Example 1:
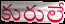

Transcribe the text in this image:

కురులే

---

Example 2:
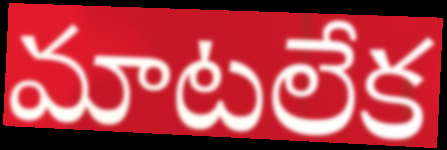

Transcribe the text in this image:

మాటలేక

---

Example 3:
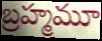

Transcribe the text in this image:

బ్రహ్మమూ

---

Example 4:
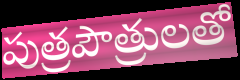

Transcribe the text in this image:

పుత్రపౌత్రులతో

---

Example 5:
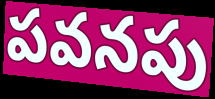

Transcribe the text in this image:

పవనపు